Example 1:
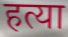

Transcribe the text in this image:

हत्या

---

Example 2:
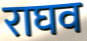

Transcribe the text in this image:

राघव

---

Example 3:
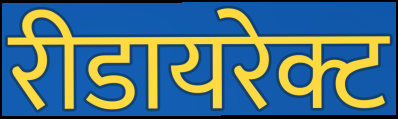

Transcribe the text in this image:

रीडायरेक्ट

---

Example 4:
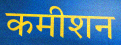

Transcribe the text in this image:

कमीशन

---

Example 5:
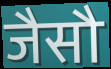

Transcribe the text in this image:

जैसौ